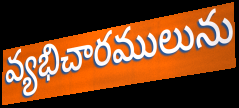
వ్యభిచారములును